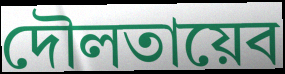
দৌলতায়েব